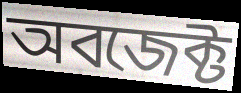
অবজেক্ট